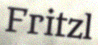
Fritzl